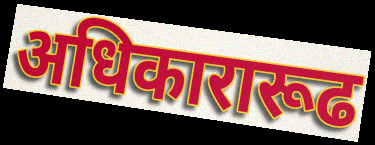
अधिकारारूढ